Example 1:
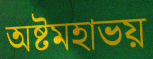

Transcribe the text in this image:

অষ্টমহাভয়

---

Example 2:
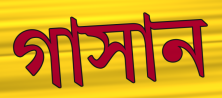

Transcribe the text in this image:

গাসান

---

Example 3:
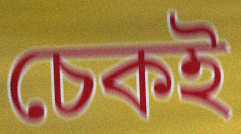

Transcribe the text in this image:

চেকই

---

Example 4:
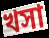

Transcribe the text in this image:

খসা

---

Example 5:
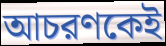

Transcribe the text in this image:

আচরণকেই